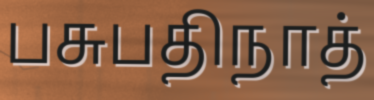
பசுபதிநாத்